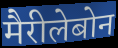
मैरीलेबोन